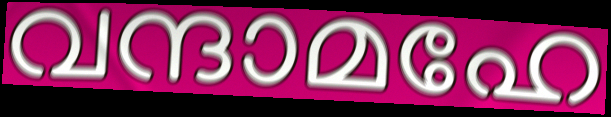
വന്ദാമഹേ